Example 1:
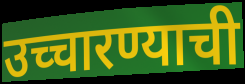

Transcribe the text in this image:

उच्चारण्याची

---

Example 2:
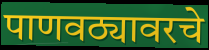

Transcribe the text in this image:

पाणवठ्यावरचे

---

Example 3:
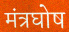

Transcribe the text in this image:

मंत्रघोष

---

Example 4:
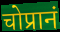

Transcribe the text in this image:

चोप्रानं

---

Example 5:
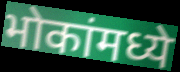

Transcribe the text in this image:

भोकांमध्ये